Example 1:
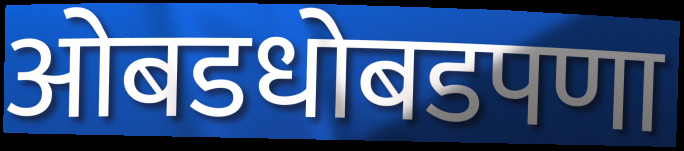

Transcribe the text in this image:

ओबडधोबडपणा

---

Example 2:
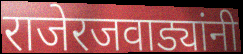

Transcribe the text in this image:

राजेरजवाड्यांनी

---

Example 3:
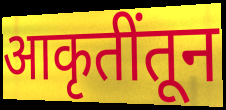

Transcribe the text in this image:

आकृतींतून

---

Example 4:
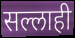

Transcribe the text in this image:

सल्लाही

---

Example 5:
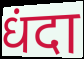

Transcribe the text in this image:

धंदा